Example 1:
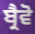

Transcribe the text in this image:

ਬ੍ਰੈਵੋ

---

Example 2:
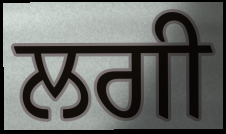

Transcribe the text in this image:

ਲਗੀ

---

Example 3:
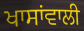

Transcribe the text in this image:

ਖਾਸਾਂਵਾਲੀ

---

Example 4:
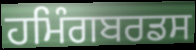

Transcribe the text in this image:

ਹਮਿੰਗਬਰਡਸ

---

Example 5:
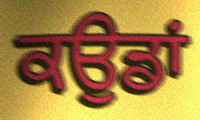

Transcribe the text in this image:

ਕਉਡਾਂ